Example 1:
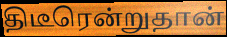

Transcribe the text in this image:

திடீரென்றுதான்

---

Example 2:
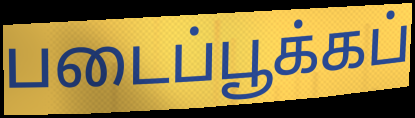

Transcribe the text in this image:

படைப்பூக்கப்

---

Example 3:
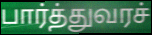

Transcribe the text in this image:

பார்த்துவரச்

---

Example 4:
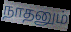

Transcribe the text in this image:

நாதனும்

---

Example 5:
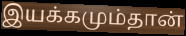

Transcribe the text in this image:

இயக்கமும்தான்